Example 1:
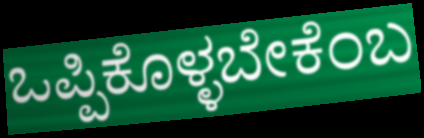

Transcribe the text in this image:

ಒಪ್ಪಿಕೊಳ್ಳಬೇಕೆಂಬ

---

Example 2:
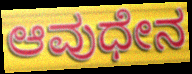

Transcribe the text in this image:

ಆವುಧೇನ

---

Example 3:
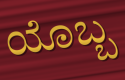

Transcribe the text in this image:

ಯೊಬ್ಬ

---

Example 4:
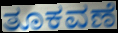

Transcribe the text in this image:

ತೂಕವಣೆ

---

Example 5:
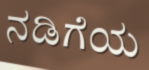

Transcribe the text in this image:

ನಡಿಗೆಯ